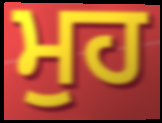
ਮੁਹ